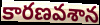
కారణవశాన